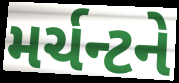
મર્ચન્ટને